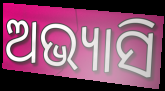
ଅଭ୍ୟାସି